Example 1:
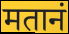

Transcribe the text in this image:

मतानं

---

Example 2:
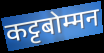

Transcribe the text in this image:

कट्टबोम्मन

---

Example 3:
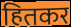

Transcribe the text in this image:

हितकर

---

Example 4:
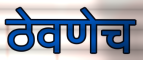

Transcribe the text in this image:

ठेवणेच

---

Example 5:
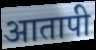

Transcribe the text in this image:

आतापी